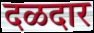
दळदार